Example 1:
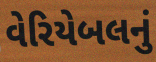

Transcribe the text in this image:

વેરિયેબલનું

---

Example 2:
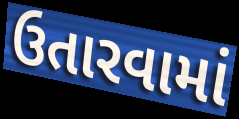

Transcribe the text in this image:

ઉતારવામાં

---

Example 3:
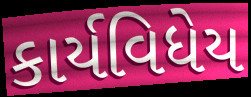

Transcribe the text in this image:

કાર્યવિધેય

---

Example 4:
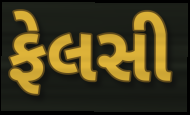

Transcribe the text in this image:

ફેલસી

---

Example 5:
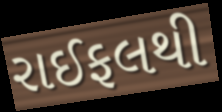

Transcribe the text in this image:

રાઈફલથી